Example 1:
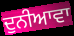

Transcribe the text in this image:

ਦੁਨੀਆਵਾ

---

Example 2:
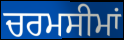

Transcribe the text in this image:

ਚਰਮਸੀਮਾਂ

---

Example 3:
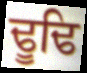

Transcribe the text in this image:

ਢੂਢਿ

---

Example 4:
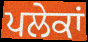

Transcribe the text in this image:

ਪਲੇਕਾਂ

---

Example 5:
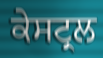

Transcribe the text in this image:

ਕੇਸਟ੍ਰਲ